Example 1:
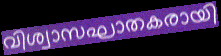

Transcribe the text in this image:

വിശ്വാസഘാതകരായി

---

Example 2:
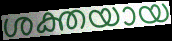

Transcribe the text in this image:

ശക്തയായ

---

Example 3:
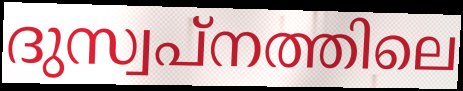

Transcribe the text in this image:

ദുസ്വപ്നത്തിലെ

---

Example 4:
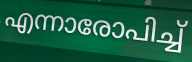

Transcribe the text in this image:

എന്നാരോപിച്ച്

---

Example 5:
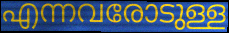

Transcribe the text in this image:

എന്നവരോടുള്ള